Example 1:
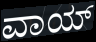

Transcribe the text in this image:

ವಾಯ್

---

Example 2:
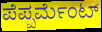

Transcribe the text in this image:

ಪೆಪ್ಪರ್ಮೆಂಟ್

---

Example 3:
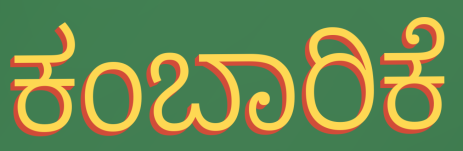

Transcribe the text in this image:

ಕಂಬಾರಿಕೆ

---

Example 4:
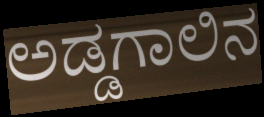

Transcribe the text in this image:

ಅಡ್ಡಗಾಲಿನ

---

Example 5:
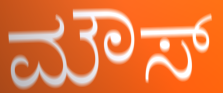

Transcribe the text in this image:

ಮೌಸ್